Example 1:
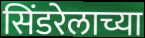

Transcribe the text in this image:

सिंडरेलाच्या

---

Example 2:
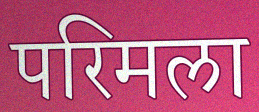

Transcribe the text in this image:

परिमला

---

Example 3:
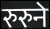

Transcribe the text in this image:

रुरुने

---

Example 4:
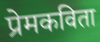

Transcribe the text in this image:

प्रेमकविता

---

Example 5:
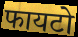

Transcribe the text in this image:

फायटो